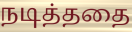
நடித்ததை